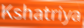
Kshatriya